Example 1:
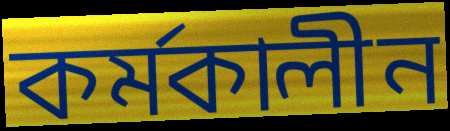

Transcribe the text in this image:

কর্মকালীন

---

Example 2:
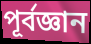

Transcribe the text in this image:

পূর্বজ্ঞান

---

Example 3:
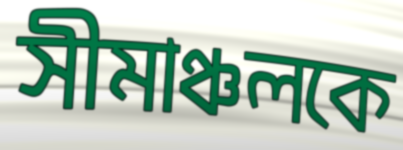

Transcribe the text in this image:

সীমাঞ্চলকে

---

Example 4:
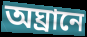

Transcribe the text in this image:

অঘ্রানে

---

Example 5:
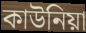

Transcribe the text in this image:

কাউনিয়া